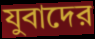
যুবাদের